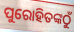
ପୁରୋହିତଙ୍କଠୁଁ